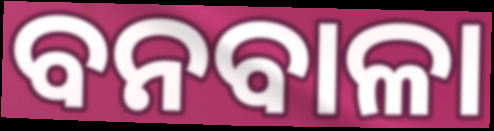
ବନବାଳା